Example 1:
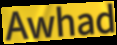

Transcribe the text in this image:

Awhad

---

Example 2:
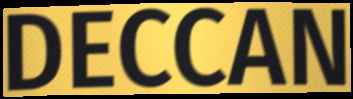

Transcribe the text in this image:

DECCAN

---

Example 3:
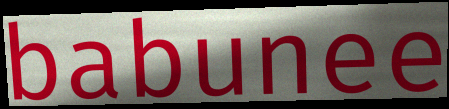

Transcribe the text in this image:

babunee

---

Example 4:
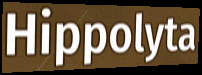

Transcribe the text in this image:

Hippolyta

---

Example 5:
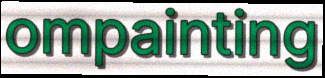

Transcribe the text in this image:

ompainting